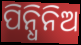
ପିନ୍ଧିନିଅ